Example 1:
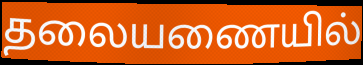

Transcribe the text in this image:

தலையணையில்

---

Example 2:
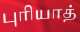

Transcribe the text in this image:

புரியாத்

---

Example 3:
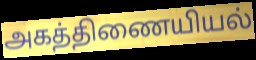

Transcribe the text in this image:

அகத்திணையியல்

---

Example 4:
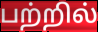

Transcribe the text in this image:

பற்றில்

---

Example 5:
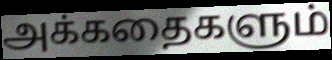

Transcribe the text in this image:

அக்கதைகளும்